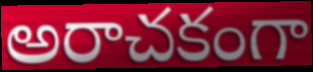
అరాచకంగా